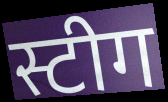
स्टीग